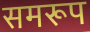
समरूप